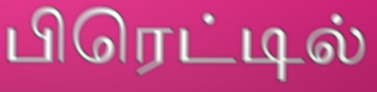
பிரெட்டில்